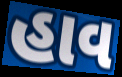
હાવ